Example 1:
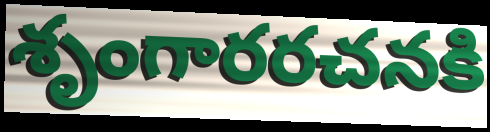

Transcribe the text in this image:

శృంగారరచనకి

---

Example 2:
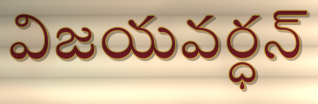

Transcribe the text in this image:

విజయవర్ధన్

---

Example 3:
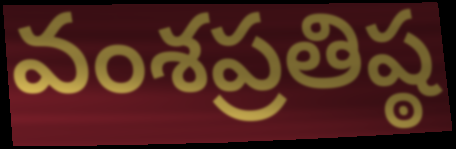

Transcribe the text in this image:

వంశప్రతిష్ఠ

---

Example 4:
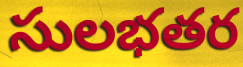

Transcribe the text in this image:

సులభతర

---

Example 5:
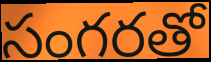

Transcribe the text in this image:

సంగరతో